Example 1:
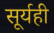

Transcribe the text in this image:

सूर्यही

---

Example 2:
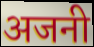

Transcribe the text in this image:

अजनी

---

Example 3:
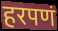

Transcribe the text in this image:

हरपणं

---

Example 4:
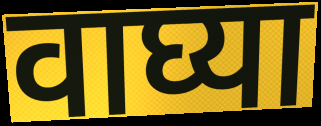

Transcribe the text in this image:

वाघ्या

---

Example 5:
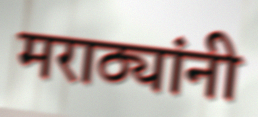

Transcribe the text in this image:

मराठ्यांनी